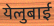
येलुबाई